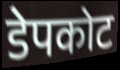
डेपकोट